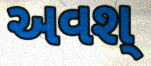
અવશ્